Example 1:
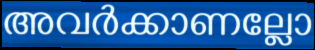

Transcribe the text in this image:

അവർക്കാണല്ലോ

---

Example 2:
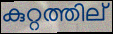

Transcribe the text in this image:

കുറ്റത്തില്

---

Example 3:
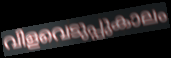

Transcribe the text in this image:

വിളവെടുപ്പുകാലം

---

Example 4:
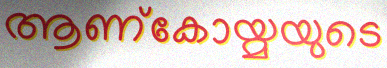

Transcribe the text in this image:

ആണ്കോയ്മയുടെ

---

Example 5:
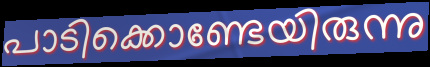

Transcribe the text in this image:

പാടിക്കൊണ്ടേയിരുന്നു